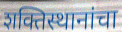
शक्तिस्थानांचा